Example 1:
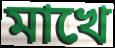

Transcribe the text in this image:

মাখে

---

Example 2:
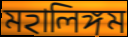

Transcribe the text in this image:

মহালিঙ্গম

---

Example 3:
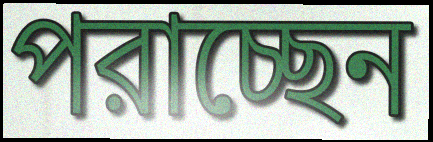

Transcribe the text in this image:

পরাচ্ছেন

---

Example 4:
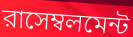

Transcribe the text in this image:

রাসেম্বলমেন্ট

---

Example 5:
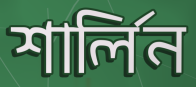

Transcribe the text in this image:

শার্লিন